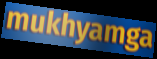
mukhyamga